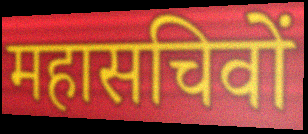
महासचिवों